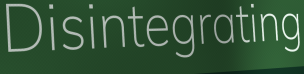
Disintegrating